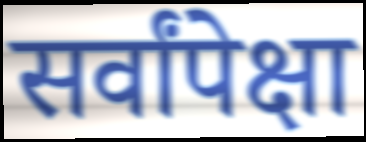
सर्वांपेक्षा